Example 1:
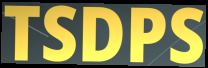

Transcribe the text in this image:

TSDPS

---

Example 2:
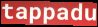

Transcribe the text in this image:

tappadu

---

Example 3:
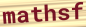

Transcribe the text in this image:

mathsf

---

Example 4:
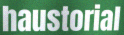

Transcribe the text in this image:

haustorial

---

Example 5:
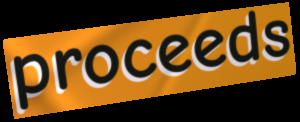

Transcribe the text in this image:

proceeds